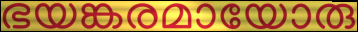
ഭയങ്കരമായോരു